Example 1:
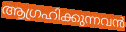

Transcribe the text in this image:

ആഗ്രഹിക്കുന്നവൻ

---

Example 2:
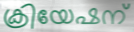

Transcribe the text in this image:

ക്രിയേഷന്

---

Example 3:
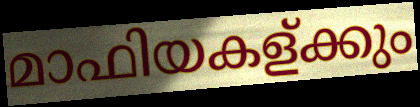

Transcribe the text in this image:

മാഫിയകള്ക്കും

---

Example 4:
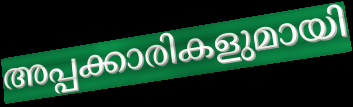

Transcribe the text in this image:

അപ്പക്കാരികളുമായി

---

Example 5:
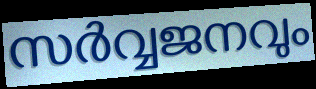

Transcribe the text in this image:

സർവ്വജനവും